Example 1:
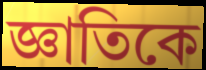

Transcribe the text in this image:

জ্ঞাতিকে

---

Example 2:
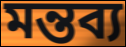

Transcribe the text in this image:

মন্তব্য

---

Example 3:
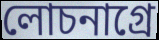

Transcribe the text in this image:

লোচনাগ্রে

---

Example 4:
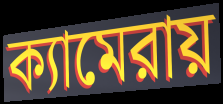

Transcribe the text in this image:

ক্যামেরায়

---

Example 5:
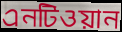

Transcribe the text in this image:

এনটিওয়ান